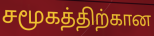
சமூகத்திற்கான